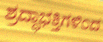
ಶ್ರದ್ಧಾಭಕ್ತಿಗಳಿಂದ